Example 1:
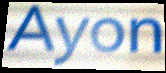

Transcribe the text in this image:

Ayon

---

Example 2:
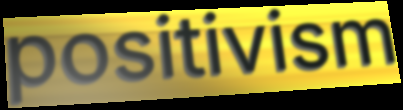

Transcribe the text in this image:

positivism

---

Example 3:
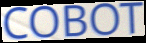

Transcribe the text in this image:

COBOT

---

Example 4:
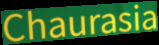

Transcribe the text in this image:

Chaurasia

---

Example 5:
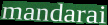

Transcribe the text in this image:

mandarai